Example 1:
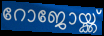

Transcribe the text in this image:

റോജോയ്ക്ക്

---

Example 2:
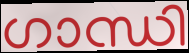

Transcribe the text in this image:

ഗാന്ധി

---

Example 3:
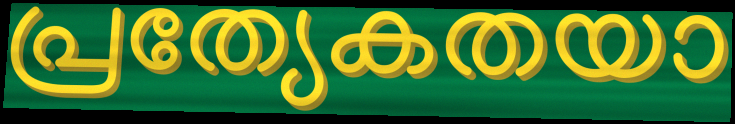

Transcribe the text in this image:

പ്രത്യേകതയാ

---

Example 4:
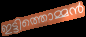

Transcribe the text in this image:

ഇട്ടിത്തൊമ്മൻ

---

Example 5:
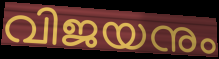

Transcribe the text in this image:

വിജയനും